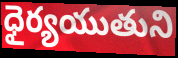
ధైర్యయుతుని